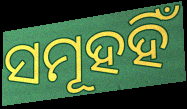
ସମୂହହିଁ